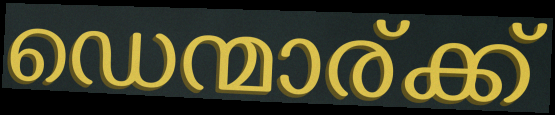
ഡെന്മാര്ക്ക്